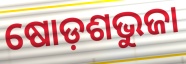
ଷୋଡ଼ଶଭୁଜା